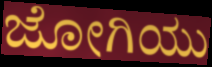
ಜೋಗಿಯು